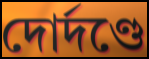
দোর্দণ্ডে